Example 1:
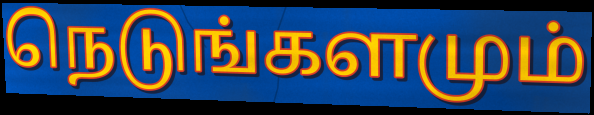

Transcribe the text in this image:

நெடுங்களமும்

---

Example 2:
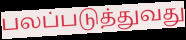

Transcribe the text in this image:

பலப்படுத்துவது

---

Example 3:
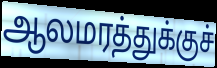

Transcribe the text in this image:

ஆலமரத்துக்குச்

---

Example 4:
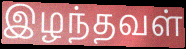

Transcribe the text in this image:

இழந்தவள்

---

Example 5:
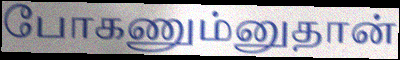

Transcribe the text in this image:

போகணும்னுதான்